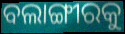
ବଲାଙ୍ଗୀରକୁ